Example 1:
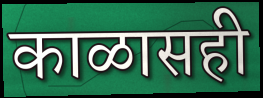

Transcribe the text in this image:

काळासही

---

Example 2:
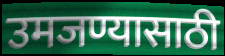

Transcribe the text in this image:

उमजण्यासाठी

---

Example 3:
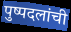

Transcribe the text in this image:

पुष्पदलांची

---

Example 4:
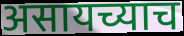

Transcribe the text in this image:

असायच्याच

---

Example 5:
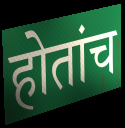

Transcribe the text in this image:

होतांच